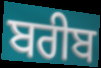
ਬਰੀਬ